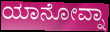
ಯಾನೋವ್ನಾ